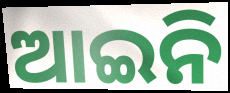
ଆଇନି